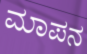
ಮಾಪನ